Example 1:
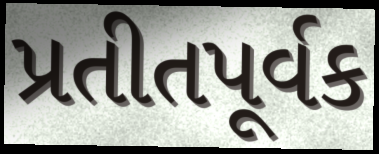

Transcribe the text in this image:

પ્રતીતપૂર્વક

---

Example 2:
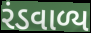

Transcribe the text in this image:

રંડવાળ્ય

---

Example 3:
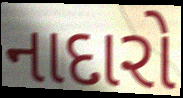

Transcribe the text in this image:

નાદારો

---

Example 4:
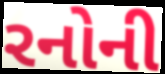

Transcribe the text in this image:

રનોની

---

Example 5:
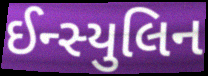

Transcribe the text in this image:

ઈન્સ્યુલિન